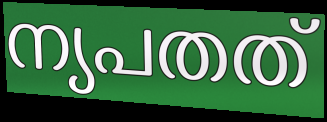
ന്യപതത്